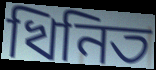
খিনিত